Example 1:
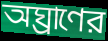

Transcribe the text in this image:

অঘ্রাণের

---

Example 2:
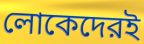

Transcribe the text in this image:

লোকেদেরই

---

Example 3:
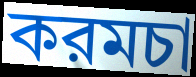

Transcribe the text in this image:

করমচা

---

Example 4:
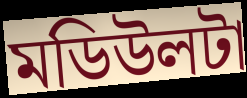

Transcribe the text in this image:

মডিউলটা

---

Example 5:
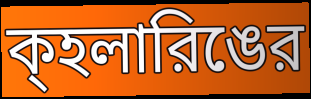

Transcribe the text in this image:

ক্হলারিঙের